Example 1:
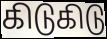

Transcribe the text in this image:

கிடுகிடு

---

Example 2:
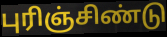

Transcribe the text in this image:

புரிஞ்சிண்டு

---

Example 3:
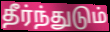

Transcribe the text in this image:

தீர்ந்துடும்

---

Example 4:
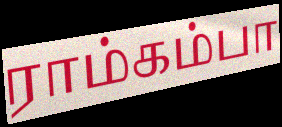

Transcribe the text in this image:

ராம்கம்பா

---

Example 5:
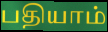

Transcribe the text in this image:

பதியாம்